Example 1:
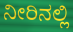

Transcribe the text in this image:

ನೀರಿನಲ್ಲಿ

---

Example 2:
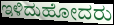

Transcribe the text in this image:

ಇಳಿದುಹೋದರು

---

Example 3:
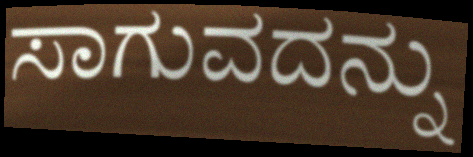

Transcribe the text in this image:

ಸಾಗುವದನ್ನು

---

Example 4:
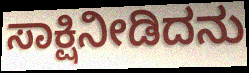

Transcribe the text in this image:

ಸಾಕ್ಷಿನೀಡಿದನು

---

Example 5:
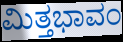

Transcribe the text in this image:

ಮಿತ್ತಭಾವಂ